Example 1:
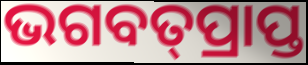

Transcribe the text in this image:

ଭଗବତ୍‌ପ୍ରାପ୍ତ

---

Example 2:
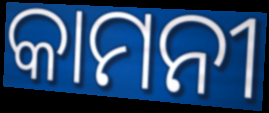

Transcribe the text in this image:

କାମନୀ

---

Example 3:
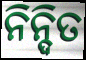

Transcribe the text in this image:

ନିନ୍ଦିତ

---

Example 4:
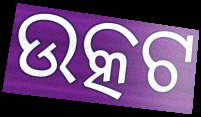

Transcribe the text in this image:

ଉତ୍କଟ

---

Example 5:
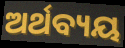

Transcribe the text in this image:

ଅର୍ଥବ୍ୟୟ